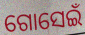
ଗୋସେଇଁ